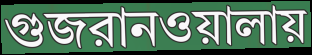
গুজরানওয়ালায়